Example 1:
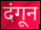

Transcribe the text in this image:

दंगून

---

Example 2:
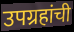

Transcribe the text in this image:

उपग्रहांची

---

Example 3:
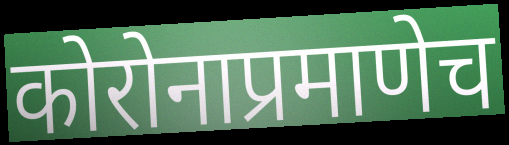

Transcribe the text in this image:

कोरोनाप्रमाणेच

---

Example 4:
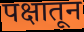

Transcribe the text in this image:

पक्षातून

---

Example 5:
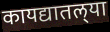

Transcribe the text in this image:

कायद्यातल्या